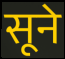
सूने